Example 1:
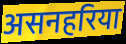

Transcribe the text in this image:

असनहरिया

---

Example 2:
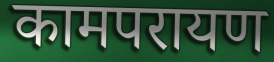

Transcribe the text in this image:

कामपरायण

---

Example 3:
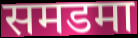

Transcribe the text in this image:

समडमा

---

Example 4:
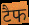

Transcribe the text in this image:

टैफ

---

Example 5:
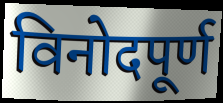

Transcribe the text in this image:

विनोदपूर्ण